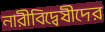
নারীবিদ্বেষীদের